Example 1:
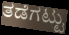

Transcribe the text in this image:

ತಡೆಗಟ್ಟು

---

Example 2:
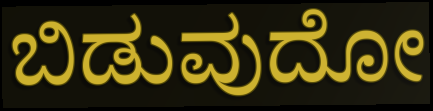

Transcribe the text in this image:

ಬಿಡುವುದೋ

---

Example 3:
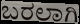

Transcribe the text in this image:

ಬರಲಾಗಿ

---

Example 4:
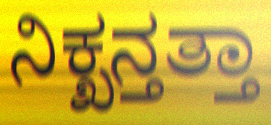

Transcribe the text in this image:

ನಿಕ್ಖನ್ತತ್ತಾ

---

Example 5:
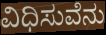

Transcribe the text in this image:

ವಿಧಿಸುವೆನು